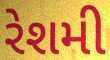
રેશમી